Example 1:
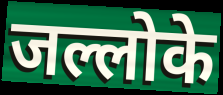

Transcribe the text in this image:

जल्लोके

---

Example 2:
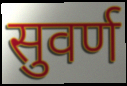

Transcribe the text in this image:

सुवर्ण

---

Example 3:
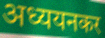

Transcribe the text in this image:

अध्ययनकर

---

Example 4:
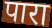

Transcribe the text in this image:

पारा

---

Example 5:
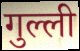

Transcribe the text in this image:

गुल्ली